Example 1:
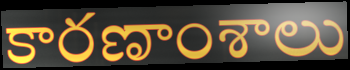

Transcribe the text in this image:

కారణాంశాలు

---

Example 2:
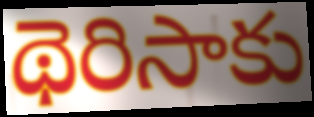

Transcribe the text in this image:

థెరిసాకు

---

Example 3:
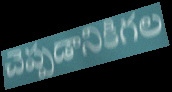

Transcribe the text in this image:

చెప్పడానికిగల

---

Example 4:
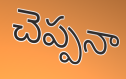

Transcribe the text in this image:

చెప్పనా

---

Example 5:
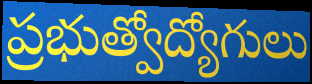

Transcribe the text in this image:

ప్రభుత్వోద్యోగులు